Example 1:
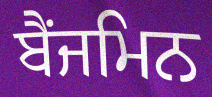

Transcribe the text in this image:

ਬੈਂਜਮਿਨ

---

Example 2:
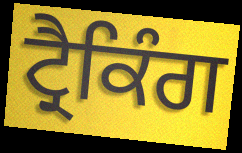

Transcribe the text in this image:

ਟ੍ਰੈਕਿੰਗ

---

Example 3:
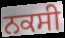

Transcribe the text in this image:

ਨਕਸੀ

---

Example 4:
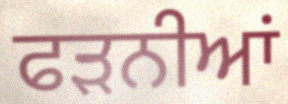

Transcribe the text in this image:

ਫੜਨੀਆਂ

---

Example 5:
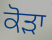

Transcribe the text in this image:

ਕੋੜਾ